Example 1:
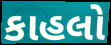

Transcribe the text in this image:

કાહલો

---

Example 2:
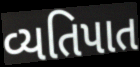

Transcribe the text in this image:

વ્યતિપાત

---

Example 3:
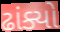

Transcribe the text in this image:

ઢાંક્યો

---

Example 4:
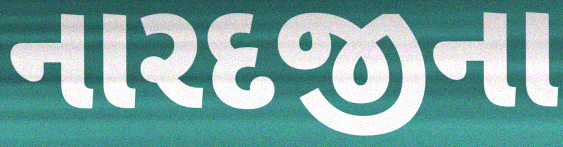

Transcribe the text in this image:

નારદજીના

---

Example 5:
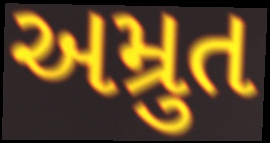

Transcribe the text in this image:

અમ્રુત